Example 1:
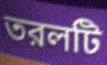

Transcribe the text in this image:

তরলটি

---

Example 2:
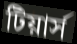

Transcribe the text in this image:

টিয়ার্স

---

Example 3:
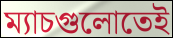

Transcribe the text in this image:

ম্যাচগুলোতেই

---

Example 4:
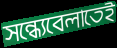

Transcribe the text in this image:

সন্ধ্যেবেলাতেই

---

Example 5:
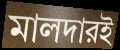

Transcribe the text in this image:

মালদারই